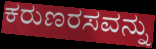
ಕರುಣರಸವನ್ನು